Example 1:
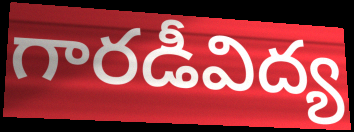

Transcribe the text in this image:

గారడీవిద్య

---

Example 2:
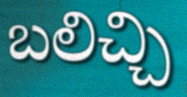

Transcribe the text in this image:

బలిచ్చి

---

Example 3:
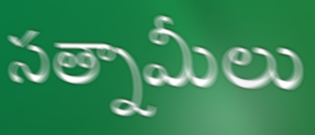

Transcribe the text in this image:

సత్నామీలు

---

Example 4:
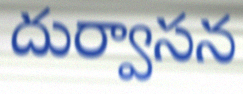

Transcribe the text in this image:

దుర్వాసన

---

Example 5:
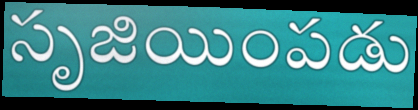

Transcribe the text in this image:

సృజియింపడు